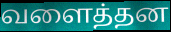
வளைத்தன